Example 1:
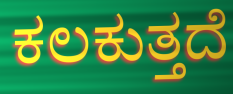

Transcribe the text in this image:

ಕಲಕುತ್ತದೆ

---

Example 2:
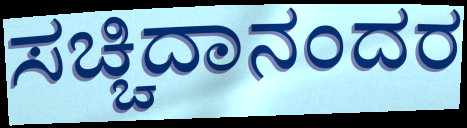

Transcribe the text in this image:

ಸಚ್ಚಿದಾನಂದರ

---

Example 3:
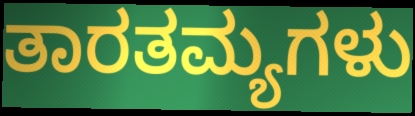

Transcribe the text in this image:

ತಾರತಮ್ಯಗಳು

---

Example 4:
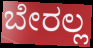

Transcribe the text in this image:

ಬೇರಲ್ಲ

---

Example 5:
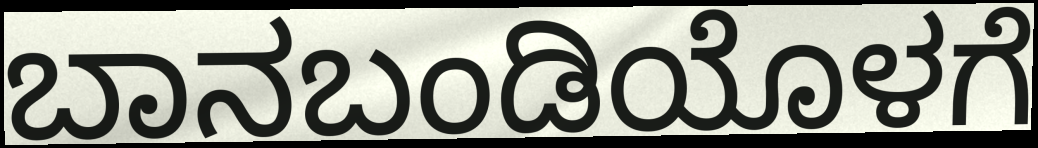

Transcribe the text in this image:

ಬಾನಬಂಡಿಯೊಳಗೆ